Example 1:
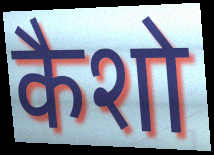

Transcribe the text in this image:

कैशो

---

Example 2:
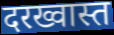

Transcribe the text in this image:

दरख्वास्त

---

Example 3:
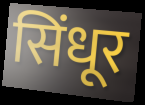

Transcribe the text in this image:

सिंधूर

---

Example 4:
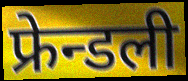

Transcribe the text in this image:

फ्रेन्डली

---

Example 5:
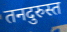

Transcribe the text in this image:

तनदुरुस्त